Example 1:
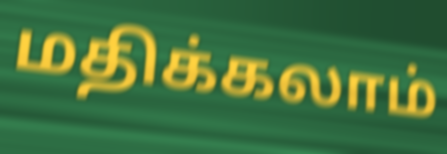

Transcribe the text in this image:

மதிக்கலாம்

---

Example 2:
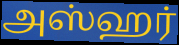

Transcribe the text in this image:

அஸ்ஹர்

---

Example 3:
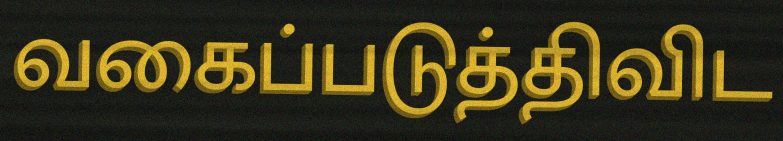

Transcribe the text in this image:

வகைப்படுத்திவிட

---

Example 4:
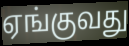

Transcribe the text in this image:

ஏங்குவது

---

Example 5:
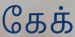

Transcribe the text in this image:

கேக்